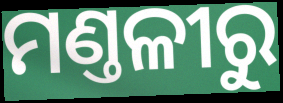
ମଣ୍ତଳୀରୁ